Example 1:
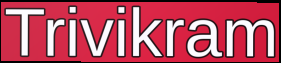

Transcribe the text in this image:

Trivikram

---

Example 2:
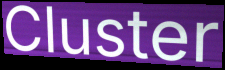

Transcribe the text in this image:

Cluster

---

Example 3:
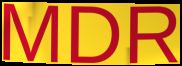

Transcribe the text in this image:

MDR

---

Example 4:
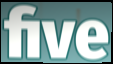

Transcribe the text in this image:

five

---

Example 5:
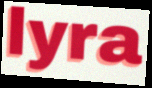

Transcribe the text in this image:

lyra